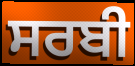
ਸਰਬੀ